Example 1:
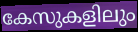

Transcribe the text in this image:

കേസുകളിലും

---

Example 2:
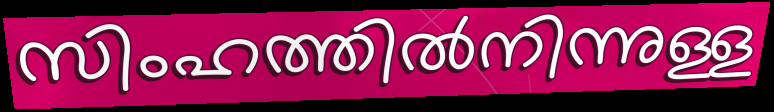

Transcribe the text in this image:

സിംഹത്തിൽനിന്നുള്ള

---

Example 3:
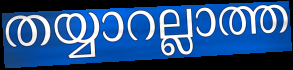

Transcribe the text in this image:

തയ്യാറല്ലാത്ത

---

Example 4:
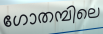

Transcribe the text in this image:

ഗോതമ്പിലെ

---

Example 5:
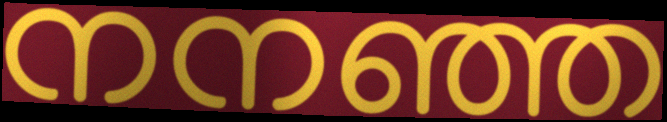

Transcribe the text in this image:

നനഞ്ഞ